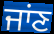
ਜਾਂਣ